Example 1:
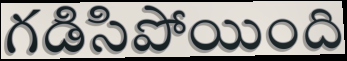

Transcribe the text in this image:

గడిసిపోయింది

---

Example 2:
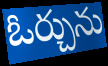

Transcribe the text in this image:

ఓర్చును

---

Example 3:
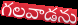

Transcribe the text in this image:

గలవాడను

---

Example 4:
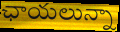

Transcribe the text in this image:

ఛాయలున్నా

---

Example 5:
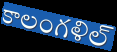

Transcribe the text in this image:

కాలంగళిల్